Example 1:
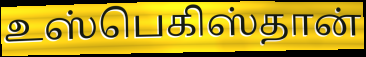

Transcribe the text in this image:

உஸ்பெகிஸ்தான்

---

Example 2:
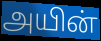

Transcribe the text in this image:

அயின்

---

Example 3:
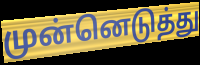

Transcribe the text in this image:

முன்னெடுத்து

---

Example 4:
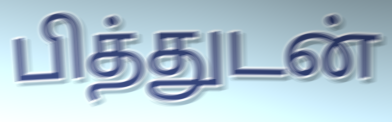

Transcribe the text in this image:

பித்துடன்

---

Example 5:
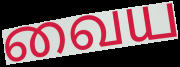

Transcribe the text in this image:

வைய